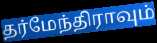
தர்மேந்திராவும்